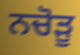
ਨਚੋੜੂ